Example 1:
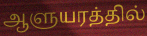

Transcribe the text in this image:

ஆளுயரத்தில்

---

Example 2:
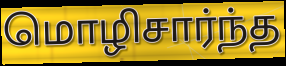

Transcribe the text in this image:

மொழிசார்ந்த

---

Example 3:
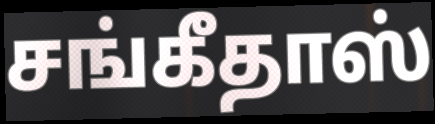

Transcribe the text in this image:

சங்கீதாஸ்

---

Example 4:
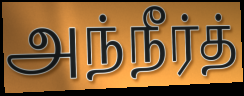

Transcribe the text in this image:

அந்நீர்த்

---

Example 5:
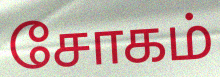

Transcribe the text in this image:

சோகம்